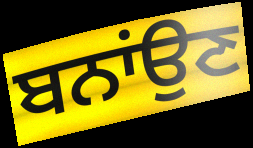
ਬਨਾਂਉਣ